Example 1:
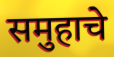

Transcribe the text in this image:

समुहाचे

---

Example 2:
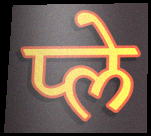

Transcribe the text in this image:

प्ले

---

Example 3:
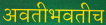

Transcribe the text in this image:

अवतीभवतीच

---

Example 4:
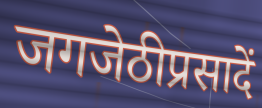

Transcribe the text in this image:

जगजेठीप्रसादें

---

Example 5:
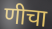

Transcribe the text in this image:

णीचा